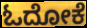
ಓದೋಕೆ